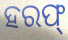
ହରଫ୍